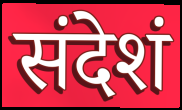
संदेशं